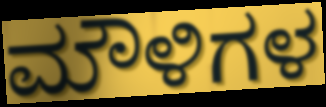
ಮೌಳಿಗಳ